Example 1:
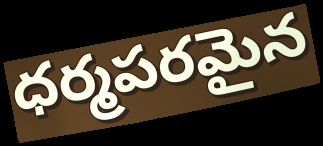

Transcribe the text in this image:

ధర్మపరమైన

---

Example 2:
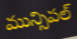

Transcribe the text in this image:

మున్సిపల్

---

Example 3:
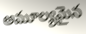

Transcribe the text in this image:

అమూల్యమైన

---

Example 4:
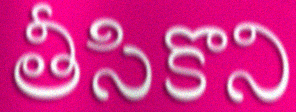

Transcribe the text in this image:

తీసికొని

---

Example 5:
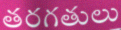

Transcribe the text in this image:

తరగతులు